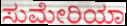
ಸುಮೇರಿಯಾ